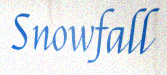
Snowfall